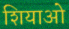
शियाओ